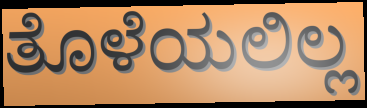
ತೊಳೆಯಲಿಲ್ಲ